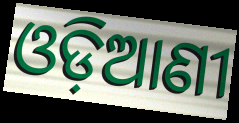
ଓଡ଼ିଆଣୀ